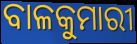
ବାଳକୁମାରୀ